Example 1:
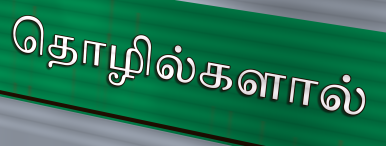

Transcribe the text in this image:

தொழில்களால்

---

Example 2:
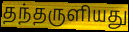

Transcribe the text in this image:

தந்தருளியது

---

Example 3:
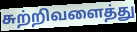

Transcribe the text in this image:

சுற்றிவளைத்து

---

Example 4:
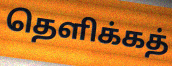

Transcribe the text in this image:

தெளிக்கத்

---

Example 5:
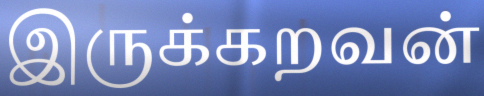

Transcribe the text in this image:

இருக்கறவன்